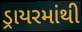
ડ્રાયરમાંથી